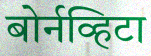
बोर्नव्हिटा